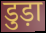
डुड़ा